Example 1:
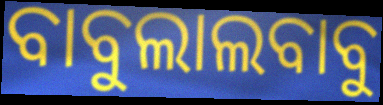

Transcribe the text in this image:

ବାବୁଲାଲବାବୁ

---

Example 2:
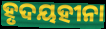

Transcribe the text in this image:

ହୃଦୟହୀନା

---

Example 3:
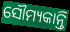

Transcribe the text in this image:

ସୌମ୍ୟକାନ୍ତି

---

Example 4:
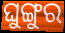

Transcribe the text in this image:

ଘୁଙ୍ଗୁର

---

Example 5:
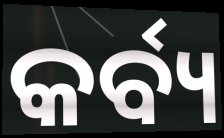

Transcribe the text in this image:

କର୍ବ୍ୟ